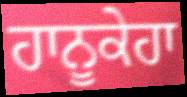
ਹਾਨੂਕੇਹਾ